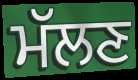
ਮੱਲਣ